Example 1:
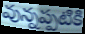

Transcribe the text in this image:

వున్నప్పటికి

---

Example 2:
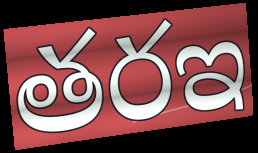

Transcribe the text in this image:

తరఇ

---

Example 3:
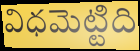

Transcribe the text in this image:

విధమెట్టిది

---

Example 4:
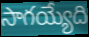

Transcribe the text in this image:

సాగయ్యేది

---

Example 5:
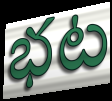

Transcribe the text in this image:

భట